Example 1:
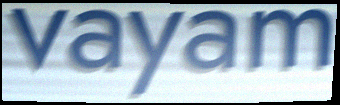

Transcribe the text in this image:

vayam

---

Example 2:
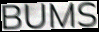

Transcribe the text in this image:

BUMS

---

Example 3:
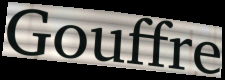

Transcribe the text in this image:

Gouffre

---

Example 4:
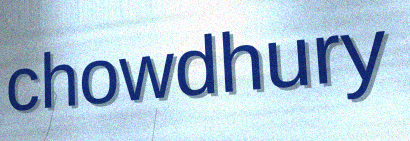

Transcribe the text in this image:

chowdhury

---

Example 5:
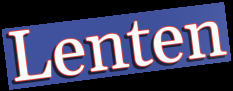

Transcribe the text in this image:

Lenten